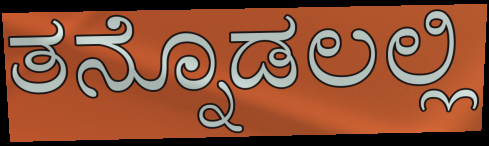
ತನ್ನೊಡಲಲ್ಲಿ